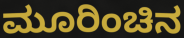
ಮೂರಿಂಚಿನ